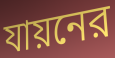
যায়নের